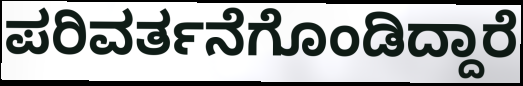
ಪರಿವರ್ತನೆಗೊಂಡಿದ್ದಾರೆ